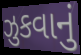
ઝુકવાનું